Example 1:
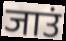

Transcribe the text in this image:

जाउं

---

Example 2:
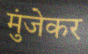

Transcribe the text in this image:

मुंजेकर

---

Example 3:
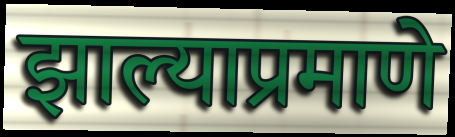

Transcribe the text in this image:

झाल्याप्रमाणे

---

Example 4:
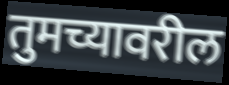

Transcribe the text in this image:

तुमच्यावरील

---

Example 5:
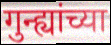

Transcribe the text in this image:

गुन्ह्यांच्या